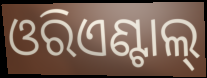
ଓରିଏଣ୍ଟାଲ୍